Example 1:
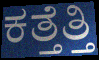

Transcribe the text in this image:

ಕತ್ತೆತ್ತಿ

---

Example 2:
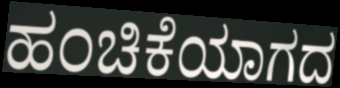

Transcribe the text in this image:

ಹಂಚಿಕೆಯಾಗದ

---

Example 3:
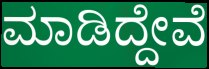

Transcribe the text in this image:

ಮಾಡಿದ್ದೇವೆ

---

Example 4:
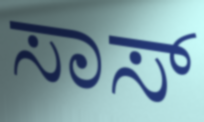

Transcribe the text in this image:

ಸಾಸ್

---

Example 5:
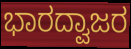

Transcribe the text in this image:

ಭಾರದ್ವಾಜರ